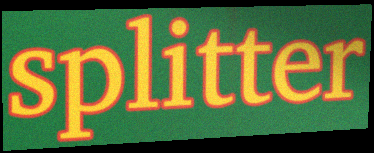
splitter